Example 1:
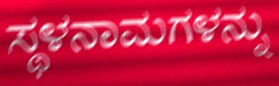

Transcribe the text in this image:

ಸ್ಥಳನಾಮಗಳನ್ನು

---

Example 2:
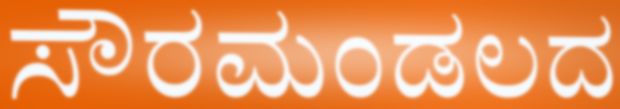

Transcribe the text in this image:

ಸೌರಮಂಡಲದ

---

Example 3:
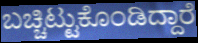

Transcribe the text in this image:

ಬಚ್ಚಿಟ್ಟುಕೊಂಡಿದ್ದಾರೆ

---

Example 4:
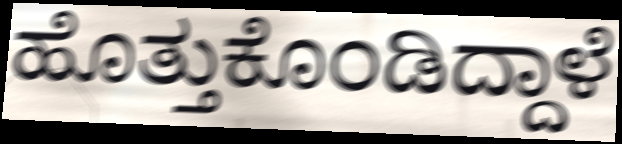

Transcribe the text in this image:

ಹೊತ್ತುಕೊಂಡಿದ್ದಾಳೆ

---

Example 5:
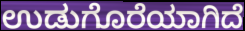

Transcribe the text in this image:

ಉಡುಗೊರೆಯಾಗಿದೆ